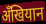
अँखियान